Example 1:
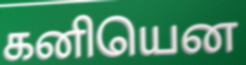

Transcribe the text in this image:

கனியென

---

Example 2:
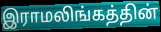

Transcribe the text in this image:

இராமலிங்கத்தின்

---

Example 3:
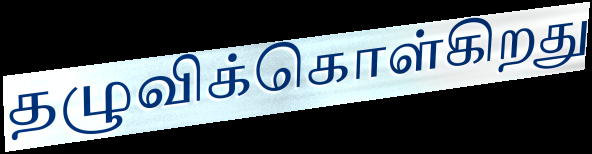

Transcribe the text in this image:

தழுவிக்கொள்கிறது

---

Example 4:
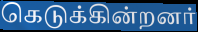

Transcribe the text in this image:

கெடுக்கின்றனர்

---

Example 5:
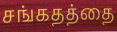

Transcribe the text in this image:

சங்கதத்தை